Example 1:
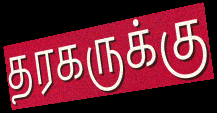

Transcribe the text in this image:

தரகருக்கு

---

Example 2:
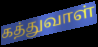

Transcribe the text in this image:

கத்துவாள்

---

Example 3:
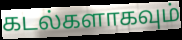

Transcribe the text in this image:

கடல்களாகவும்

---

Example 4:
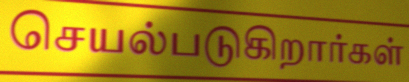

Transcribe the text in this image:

செயல்படுகிறார்கள்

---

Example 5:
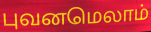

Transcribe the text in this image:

புவனமெலாம்